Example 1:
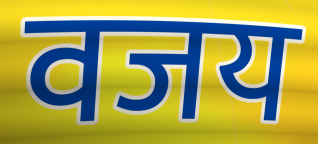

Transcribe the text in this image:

वजय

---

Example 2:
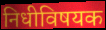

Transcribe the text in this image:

निधीविषयक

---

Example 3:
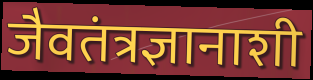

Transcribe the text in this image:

जैवतंत्रज्ञानाशी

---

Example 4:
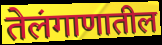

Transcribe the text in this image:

तेलंगाणातील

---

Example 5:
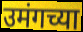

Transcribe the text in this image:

उमंगच्या